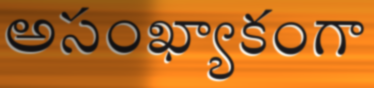
అసంఖ్యాకంగా